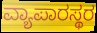
ವ್ಯಾಪಾರಸ್ಥರ